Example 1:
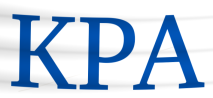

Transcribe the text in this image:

KPA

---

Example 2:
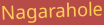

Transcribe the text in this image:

Nagarahole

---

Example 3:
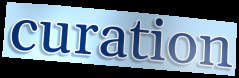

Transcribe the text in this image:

curation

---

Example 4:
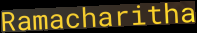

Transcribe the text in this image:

Ramacharitha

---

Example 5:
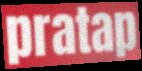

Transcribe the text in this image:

pratap